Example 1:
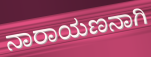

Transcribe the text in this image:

ನಾರಾಯಣನಾಗಿ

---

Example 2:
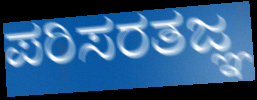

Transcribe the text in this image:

ಪರಿಸರತಜ್ಞ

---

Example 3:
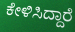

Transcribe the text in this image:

ಕೇಳಿಸಿದ್ದಾರೆ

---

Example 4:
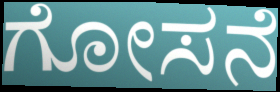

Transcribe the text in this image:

ಗೋಸನೆ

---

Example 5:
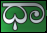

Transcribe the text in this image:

ಧಾ